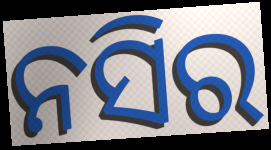
ନସିର